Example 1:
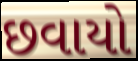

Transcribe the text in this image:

છવાયો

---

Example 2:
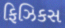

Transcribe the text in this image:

ફિઝિકસ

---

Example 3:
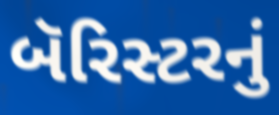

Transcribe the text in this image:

બૅરિસ્ટરનું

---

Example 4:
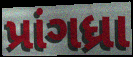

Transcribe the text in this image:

પ્રાંગધ્રા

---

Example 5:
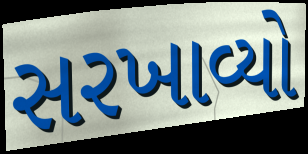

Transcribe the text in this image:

સરખાવ્યો